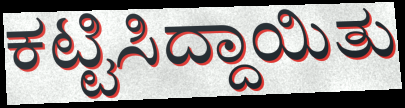
ಕಟ್ಟಿಸಿದ್ದಾಯಿತು